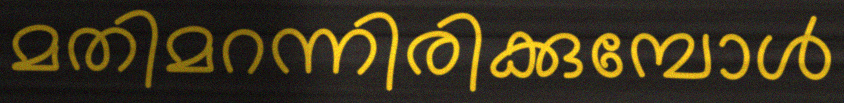
മതിമറന്നിരിക്കുമ്പോൾ